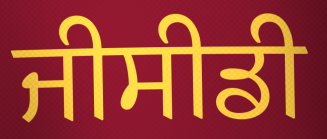
ਜੀਸੀਡੀ